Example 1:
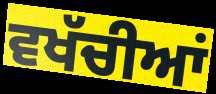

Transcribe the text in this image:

ਵਖੱਚੀਆਂ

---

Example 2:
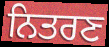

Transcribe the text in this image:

ਨਿਤਰਣ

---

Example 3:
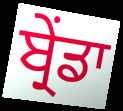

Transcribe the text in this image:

ਬ੍ਰੇਂਡਾ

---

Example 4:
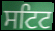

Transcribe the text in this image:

ਸਟਿਟ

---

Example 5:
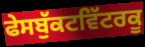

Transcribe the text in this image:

ਫੇਸਬੁੱਕਟਵਿੱਟਰਕੂ